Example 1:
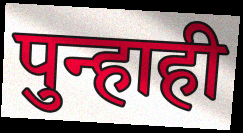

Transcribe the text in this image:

पुन्हाही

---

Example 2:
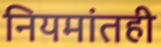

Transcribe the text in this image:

नियमांतही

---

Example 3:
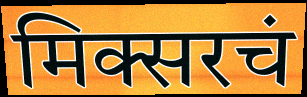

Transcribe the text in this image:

मिक्सरचं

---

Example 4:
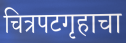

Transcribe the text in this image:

चित्रपटगृहाचा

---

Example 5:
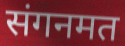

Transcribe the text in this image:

संगनमत